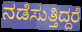
ನಡೆಸುತ್ತಿದ್ದರೆ